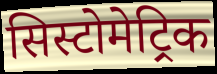
सिस्टोमेट्रिक